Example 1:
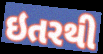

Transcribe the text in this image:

ઇતરથી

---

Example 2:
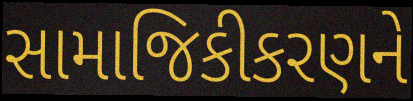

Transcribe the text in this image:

સામાજિકીકરણને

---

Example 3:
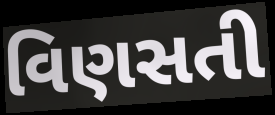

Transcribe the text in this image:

વિણસતી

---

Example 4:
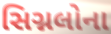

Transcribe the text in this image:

સિગ્નલોના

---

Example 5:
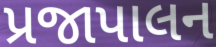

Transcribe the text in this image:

પ્રજાપાલન